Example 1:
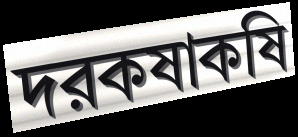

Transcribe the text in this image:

দরকষাকষি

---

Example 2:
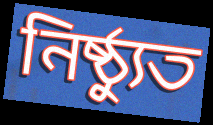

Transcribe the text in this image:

নিষ্ঠ্যুত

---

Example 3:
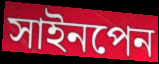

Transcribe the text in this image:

সাইনপেন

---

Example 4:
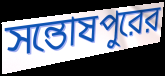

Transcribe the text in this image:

সন্তোষপুরের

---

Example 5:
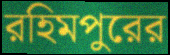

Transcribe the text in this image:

রহিমপুরের